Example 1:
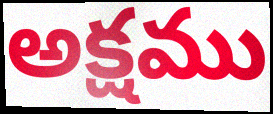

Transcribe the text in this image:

అక్షము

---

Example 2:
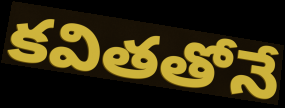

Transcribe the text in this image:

కవితతోనే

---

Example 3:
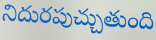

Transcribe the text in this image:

నిదురపుచ్చుతుంది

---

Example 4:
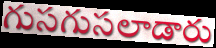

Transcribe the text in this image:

గుసగుసలాడారు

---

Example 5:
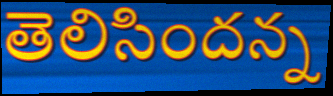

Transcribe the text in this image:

తెలిసిందన్న